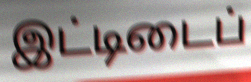
இட்டிடைப்